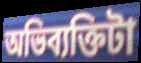
অভিব্যক্তিটা